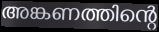
അങ്കണത്തിന്റെ